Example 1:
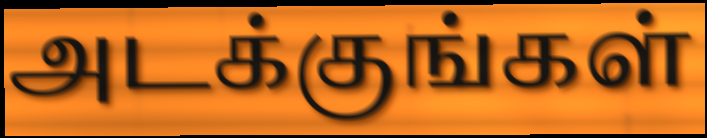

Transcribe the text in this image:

அடக்குங்கள்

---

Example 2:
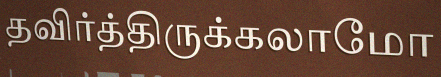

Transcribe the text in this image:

தவிர்த்திருக்கலாமோ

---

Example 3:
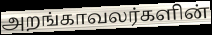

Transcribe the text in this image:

அறங்காவலர்களின்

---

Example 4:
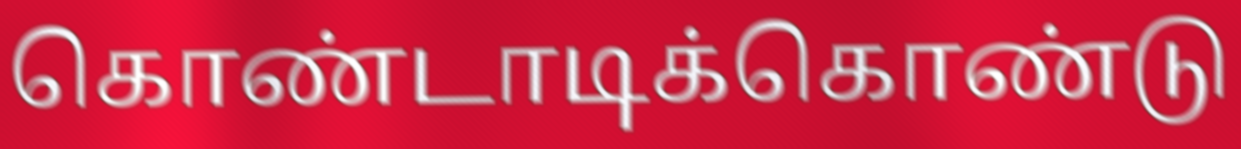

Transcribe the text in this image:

கொண்டாடிக்கொண்டு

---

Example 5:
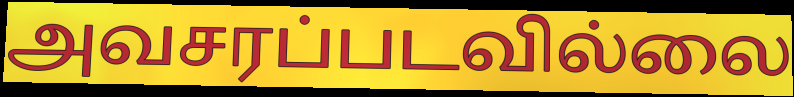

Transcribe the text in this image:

அவசரப்படவில்லை